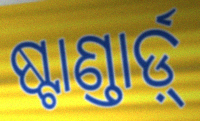
ଷ୍ଟାଣ୍ଡାର୍ଡ଼୍